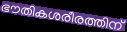
ഭൗതികശരീരത്തിന്